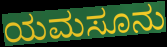
ಯಮಸೂನು